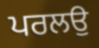
ਪਰਲਉ